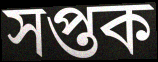
সপ্তক